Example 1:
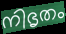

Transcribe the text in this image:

നിഭൃതം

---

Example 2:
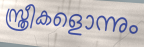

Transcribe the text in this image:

സ്ത്രീകളൊന്നും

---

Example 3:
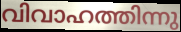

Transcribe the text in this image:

വിവാഹത്തിന്നു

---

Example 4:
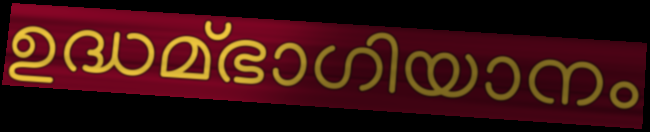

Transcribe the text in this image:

ഉദ്ധമ്ഭാഗിയാനം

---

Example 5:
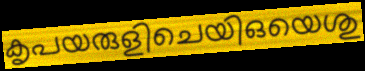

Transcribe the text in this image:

കൃപയരുളിചെയിഒയെശു